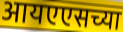
आयएएसच्या